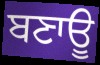
ਬਣਾਊ